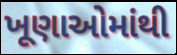
ખૂણાઓમાંથી